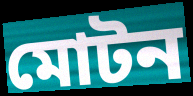
মোটন